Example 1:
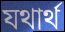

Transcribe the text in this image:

যথাৰ্থ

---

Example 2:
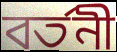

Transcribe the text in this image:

বৰ্তনী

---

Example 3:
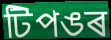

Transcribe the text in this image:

টিপঙৰ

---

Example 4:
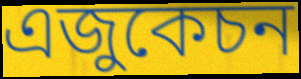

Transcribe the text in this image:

এজুকেচন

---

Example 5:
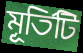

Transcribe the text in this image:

মূৰ্তিটি